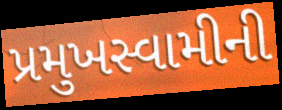
પ્રમુખસ્વામીની